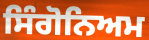
ਸਿੰਗੋਨਿਅਮ